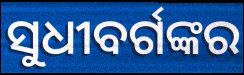
ସୁଧୀବର୍ଗଙ୍କର